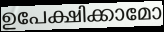
ഉപേക്ഷിക്കാമോ